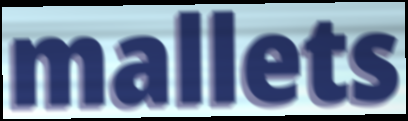
mallets